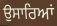
ਉਸਾਰਿਆਂ